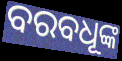
ବରବଧୂଙ୍କ